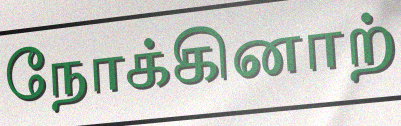
நோக்கினாற்